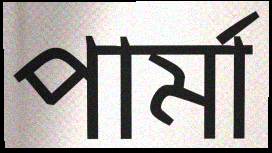
পার্মা